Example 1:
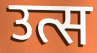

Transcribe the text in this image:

उत्स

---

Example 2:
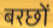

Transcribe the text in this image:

बरछों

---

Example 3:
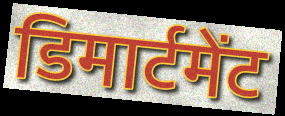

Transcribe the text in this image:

डिमार्टमेंट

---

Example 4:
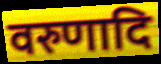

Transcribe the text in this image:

वरुणादि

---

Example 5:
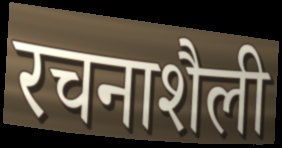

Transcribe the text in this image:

रचनाशैली